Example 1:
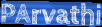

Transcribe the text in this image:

PArvathi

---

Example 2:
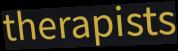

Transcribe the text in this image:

therapists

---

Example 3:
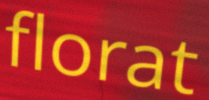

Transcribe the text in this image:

florat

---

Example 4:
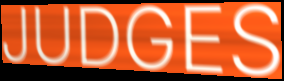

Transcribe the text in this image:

JUDGES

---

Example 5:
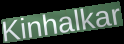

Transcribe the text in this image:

Kinhalkar